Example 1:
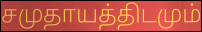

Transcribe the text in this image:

சமுதாயத்திடமும்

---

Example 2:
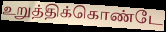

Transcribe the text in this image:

உறுத்திக்கொண்டே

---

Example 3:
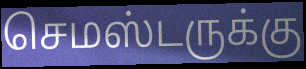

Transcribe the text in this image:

செமஸ்டருக்கு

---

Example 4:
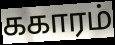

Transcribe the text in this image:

ககாரம்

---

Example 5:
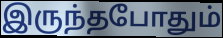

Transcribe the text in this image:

இருந்தபோதும்